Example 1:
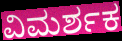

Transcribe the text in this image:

ವಿಮರ್ಶಕ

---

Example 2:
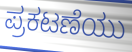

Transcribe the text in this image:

ಪ್ರಕಟಣೆಯು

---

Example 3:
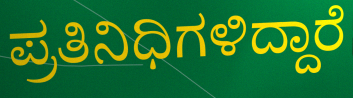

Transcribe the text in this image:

ಪ್ರತಿನಿಧಿಗಳಿದ್ದಾರೆ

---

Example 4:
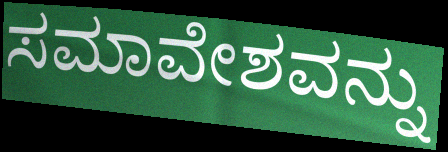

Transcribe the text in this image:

ಸಮಾವೇಶವನ್ನು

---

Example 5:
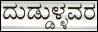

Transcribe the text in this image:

ದುಡ್ಡುಳ್ಳವರ